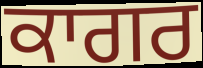
ਕਾਗਰ